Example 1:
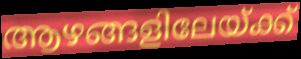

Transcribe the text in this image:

ആഴങ്ങളിലേയ്ക്ക്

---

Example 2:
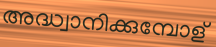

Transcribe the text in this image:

അദ്ധ്വാനിക്കുമ്പോള്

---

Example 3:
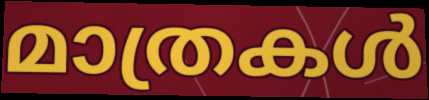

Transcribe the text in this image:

മാത്രകൾ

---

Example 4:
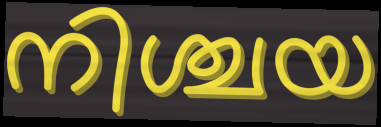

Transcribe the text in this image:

നിശ്ചയ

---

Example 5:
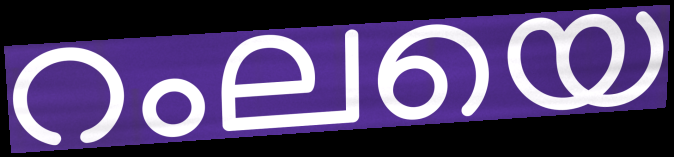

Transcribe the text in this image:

റംലയെ